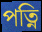
পত্নি